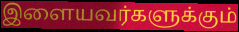
இளையவர்களுக்கும்